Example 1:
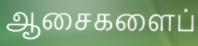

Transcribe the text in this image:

ஆசைகளைப்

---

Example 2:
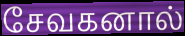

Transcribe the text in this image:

சேவகனால்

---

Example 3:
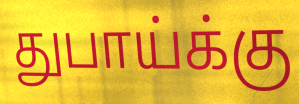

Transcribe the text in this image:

துபாய்க்கு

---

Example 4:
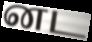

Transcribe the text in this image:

னட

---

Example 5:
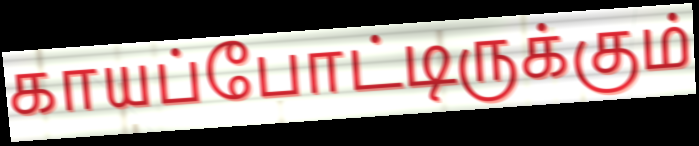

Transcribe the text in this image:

காயப்போட்டிருக்கும்